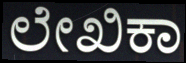
ಲೇಖಿಕಾ